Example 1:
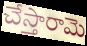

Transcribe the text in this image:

చేస్తారామె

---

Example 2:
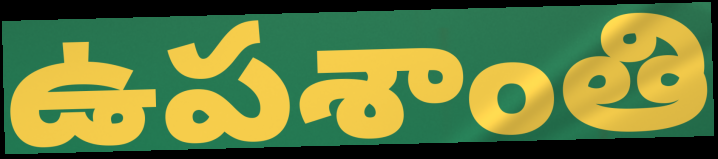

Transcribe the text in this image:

ఉపశాంతి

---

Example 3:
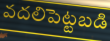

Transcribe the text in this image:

వదలిపెట్టబడి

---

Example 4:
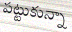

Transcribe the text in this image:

పట్టుకున్నా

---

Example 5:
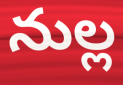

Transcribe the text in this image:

నుల్ల